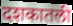
दशकातली